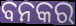
ବନକର